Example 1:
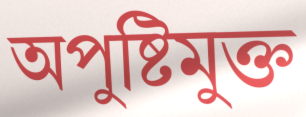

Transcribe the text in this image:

অপুষ্টিমুক্ত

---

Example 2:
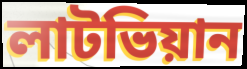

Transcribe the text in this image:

লাটভিয়ান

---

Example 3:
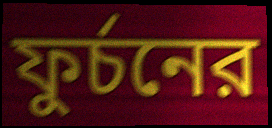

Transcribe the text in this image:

ফুর্চনের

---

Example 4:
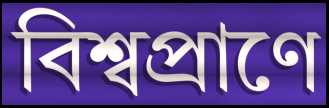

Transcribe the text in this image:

বিশ্বপ্রাণে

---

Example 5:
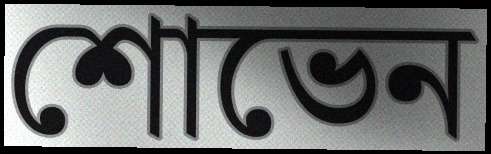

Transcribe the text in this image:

শোভেন